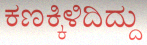
ಕಣಕ್ಕಿಳಿದಿದ್ದು